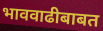
भाववाढीबाबत